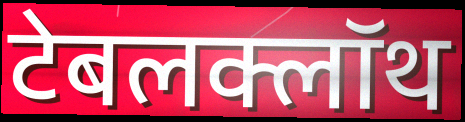
टेबलक्लॉथ